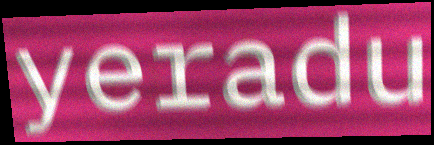
yeradu